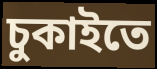
চুকাইতে